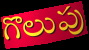
గొలుపు